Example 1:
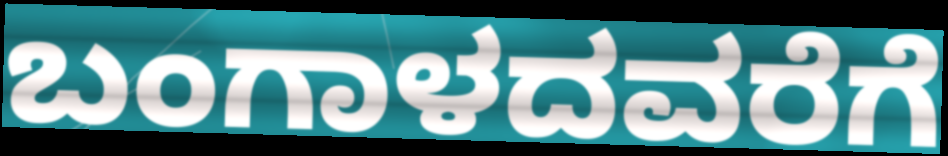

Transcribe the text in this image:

ಬಂಗಾಳದವರೆಗೆ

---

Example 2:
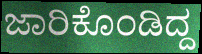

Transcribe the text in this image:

ಜಾರಿಕೊಂಡಿದ್ದ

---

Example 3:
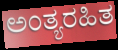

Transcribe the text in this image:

ಅಂತ್ಯರಹಿತ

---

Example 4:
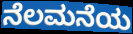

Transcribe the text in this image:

ನೆಲಮನೆಯ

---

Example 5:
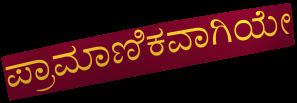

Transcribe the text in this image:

ಪ್ರಾಮಾಣಿಕವಾಗಿಯೇ